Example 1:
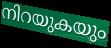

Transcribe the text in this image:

നിറയുകയും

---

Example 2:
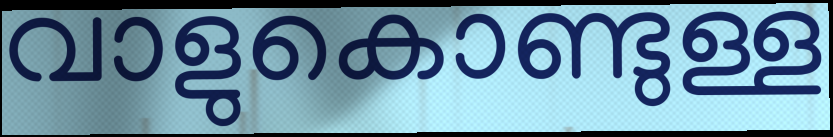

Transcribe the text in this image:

വാളുകൊണ്ടുള്ള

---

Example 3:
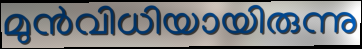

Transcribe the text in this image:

മുൻവിധിയായിരുന്നു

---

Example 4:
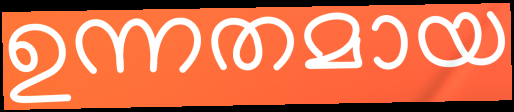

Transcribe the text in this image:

ഉന്നതമായ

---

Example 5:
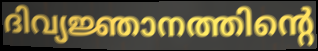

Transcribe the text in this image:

ദിവ്യജ്ഞാനത്തിന്റെ